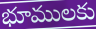
భూములకు